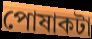
পোষাকটা